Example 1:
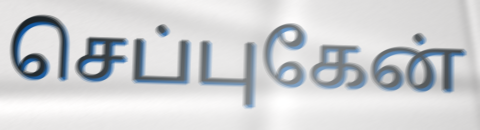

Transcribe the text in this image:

செப்புகேன்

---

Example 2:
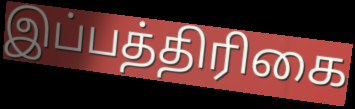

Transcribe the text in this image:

இப்பத்திரிகை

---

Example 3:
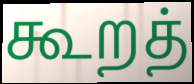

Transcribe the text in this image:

கூறத்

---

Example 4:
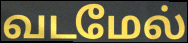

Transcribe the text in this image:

வடமேல்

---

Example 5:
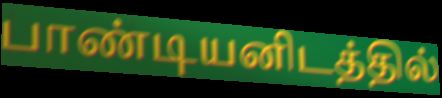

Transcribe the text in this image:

பாண்டியனிடத்தில்